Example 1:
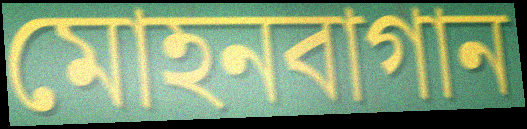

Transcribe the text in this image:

মোহনবাগান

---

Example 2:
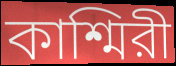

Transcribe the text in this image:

কাশ্মিরী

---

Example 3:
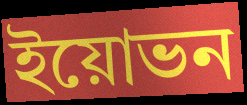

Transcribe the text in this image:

ইয়োভন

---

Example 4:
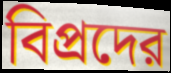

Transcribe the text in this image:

বিপ্রদের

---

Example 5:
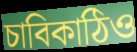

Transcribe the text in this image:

চাবিকাঠিও